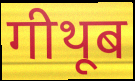
गीथूब